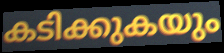
കടിക്കുകയും